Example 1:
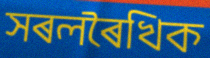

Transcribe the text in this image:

সৰলৰৈখিক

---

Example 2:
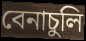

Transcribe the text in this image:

বেনাচুলি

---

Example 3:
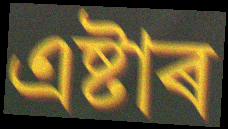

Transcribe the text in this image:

এষ্টাৰ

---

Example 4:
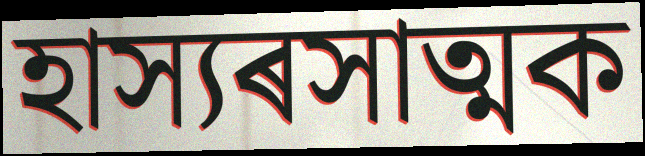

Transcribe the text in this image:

হাস্যৰসাত্মক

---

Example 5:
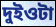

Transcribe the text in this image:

দুইওটা